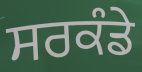
ਸਰਕੰਡੇ